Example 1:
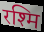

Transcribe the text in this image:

रश्मि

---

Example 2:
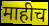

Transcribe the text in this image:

माहीच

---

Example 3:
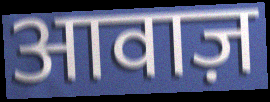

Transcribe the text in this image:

आवाज़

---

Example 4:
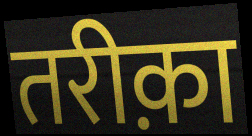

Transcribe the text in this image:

तरीक़ा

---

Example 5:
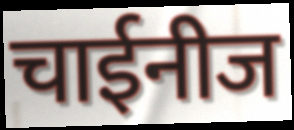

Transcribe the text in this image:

चाईनीज